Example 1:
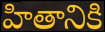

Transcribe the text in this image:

హితానికి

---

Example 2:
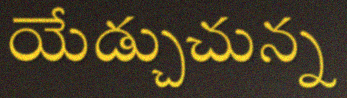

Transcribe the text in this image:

యేడ్చుచున్న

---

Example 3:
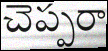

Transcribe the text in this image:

చెప్పరా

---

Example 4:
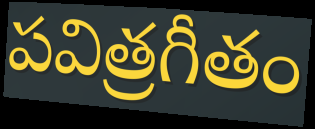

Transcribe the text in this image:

పవిత్రగీతం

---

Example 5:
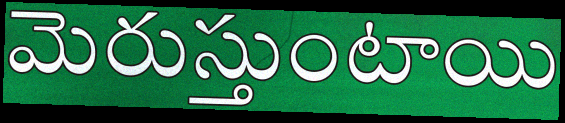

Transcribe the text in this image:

మెరుస్తుంటాయి